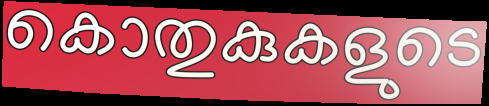
കൊതുകുകളുടെ